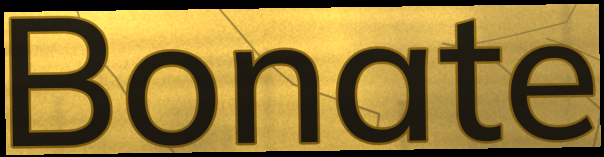
Bonate